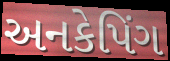
અનકેપિંગ